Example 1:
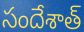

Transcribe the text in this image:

సందేశాత్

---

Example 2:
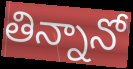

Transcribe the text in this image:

తిన్నానో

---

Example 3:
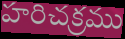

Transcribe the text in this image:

హరిచక్రము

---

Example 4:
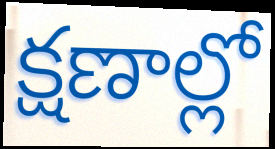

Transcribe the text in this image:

క్షణాల్లో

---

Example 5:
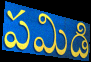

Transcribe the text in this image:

పమిడి